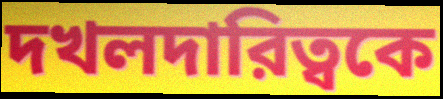
দখলদারিত্বকে